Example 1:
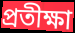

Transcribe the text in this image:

প্ৰতীক্ষা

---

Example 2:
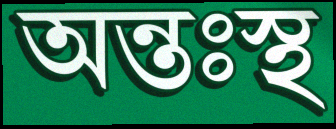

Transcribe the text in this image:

অন্তঃস্থ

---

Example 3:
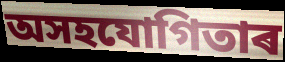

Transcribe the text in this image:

অসহযোগিতাৰ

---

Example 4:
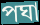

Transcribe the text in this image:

পঘা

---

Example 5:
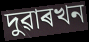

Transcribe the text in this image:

দুৱাৰখন